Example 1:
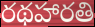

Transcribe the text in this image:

రథహారతి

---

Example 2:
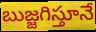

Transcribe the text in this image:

బుజ్జగిస్తూనే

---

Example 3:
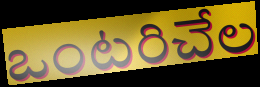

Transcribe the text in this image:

ఒంటరిచేల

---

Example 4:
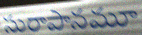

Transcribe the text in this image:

సురాపానమూ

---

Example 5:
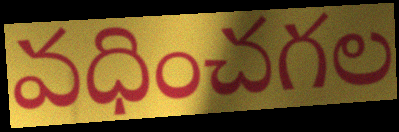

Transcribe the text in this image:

వధించగల